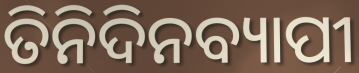
ତିନିଦିନବ୍ୟାପୀ